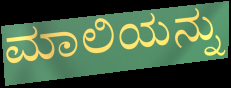
ಮಾಲಿಯನ್ನು